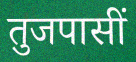
तुजपासीं